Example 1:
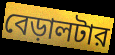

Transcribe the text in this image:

বেড়ালটার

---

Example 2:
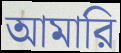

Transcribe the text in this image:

আমারি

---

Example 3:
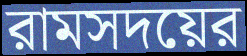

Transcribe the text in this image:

রামসদয়ের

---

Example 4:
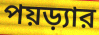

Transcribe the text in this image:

পয়ড়্যার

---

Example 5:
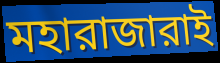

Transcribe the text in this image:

মহারাজারাই